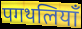
पगथलियाँ